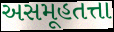
અસમૂહતત્તા